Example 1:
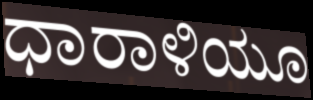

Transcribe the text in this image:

ಧಾರಾಳಿಯೂ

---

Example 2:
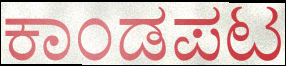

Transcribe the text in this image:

ಕಾಂಡಪಟ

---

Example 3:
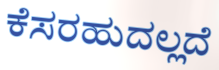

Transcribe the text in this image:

ಕೆಸರಹುದಲ್ಲದೆ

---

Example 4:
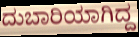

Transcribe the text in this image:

ದುಬಾರಿಯಾಗಿದ್ದ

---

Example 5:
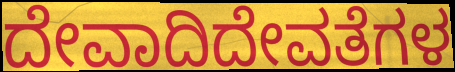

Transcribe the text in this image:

ದೇವಾದಿದೇವತೆಗಳ